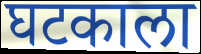
घटकाला